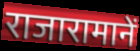
राजारामानें